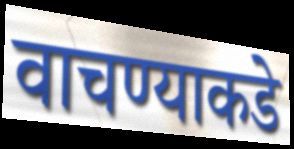
वाचण्याकडे